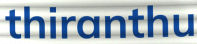
thiranthu